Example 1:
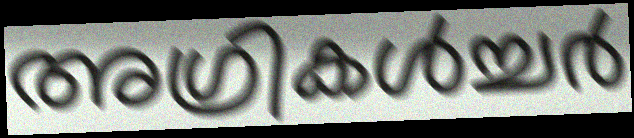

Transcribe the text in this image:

അഗ്രികൾച്ചർ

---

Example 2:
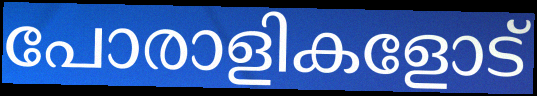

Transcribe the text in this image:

പോരാളികളോട്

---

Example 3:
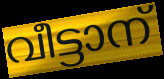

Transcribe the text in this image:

വീട്ടാന്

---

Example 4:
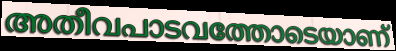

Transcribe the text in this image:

അതീവപാടവത്തോടെയാണ്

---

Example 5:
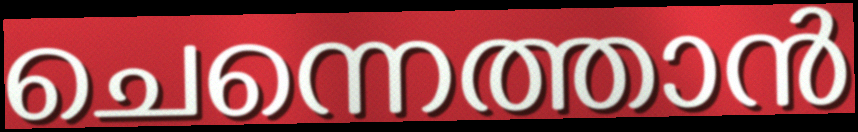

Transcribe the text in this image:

ചെന്നെത്താൻ